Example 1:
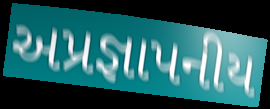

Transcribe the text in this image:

અપ્રજ્ઞાપનીય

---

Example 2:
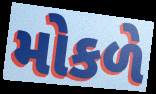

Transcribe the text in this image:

મોકળે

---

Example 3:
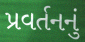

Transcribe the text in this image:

પ્રવર્તનનું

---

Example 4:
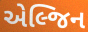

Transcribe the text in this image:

એલ્જિન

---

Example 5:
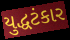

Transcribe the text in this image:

યુદ્ધટંકાર